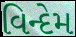
વિન્દેમ